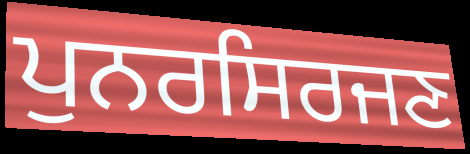
ਪੁਨਰਸਿਰਜਣ